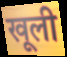
खूली